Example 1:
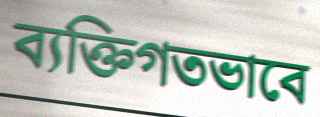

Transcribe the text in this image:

ব্যক্তিগতভাবে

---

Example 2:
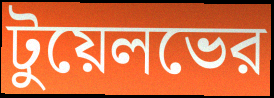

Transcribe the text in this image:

টুয়েলভের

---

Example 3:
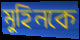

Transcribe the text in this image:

মুহিনকে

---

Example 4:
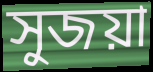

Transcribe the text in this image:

সুজয়া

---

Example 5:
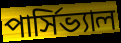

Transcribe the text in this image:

পার্সিভ্যাল